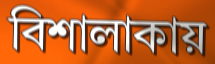
বিশালাকায়